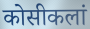
कोसीकलां